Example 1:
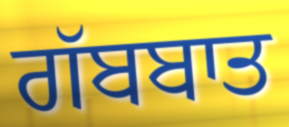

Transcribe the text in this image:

ਗੱਬਬਾਤ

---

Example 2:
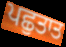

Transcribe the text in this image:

ਪਛੁਤਾਤ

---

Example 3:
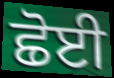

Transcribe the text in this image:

ਛੋਈ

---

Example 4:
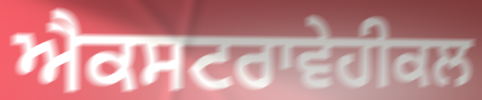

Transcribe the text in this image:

ਐਕਸਟਰਾਵੇਹੀਕਲ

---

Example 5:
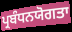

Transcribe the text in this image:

ਪ੍ਰਬੰਧਨਯੋਗਤਾ